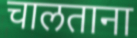
चालताना